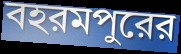
বহরমপুরের